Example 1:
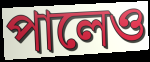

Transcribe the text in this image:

পালেও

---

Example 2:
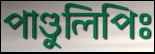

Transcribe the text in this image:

পাণ্ডুলিপিঃ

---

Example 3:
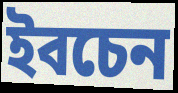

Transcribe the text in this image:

ইবচেন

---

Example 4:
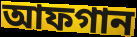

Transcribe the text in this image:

আফগান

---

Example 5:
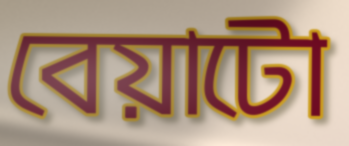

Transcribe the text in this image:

বেয়াটো